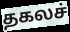
தகலச்